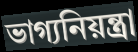
ভাগ্যনিয়ন্ত্রা